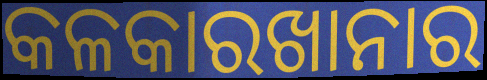
କଳକାରଖାନାର